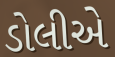
ડોલીએ